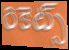
రికెట్స్